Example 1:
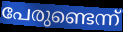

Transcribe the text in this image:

പേരുണ്ടെന്ന്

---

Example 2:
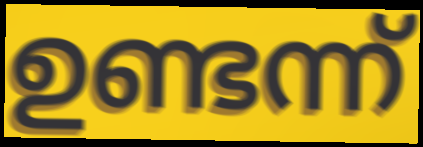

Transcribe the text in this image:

ഉണ്ടന്ന്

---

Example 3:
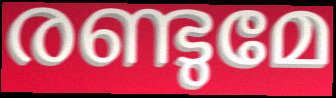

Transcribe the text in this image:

രണ്ടുമേ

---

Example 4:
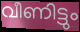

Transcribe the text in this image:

വീണിട്ടും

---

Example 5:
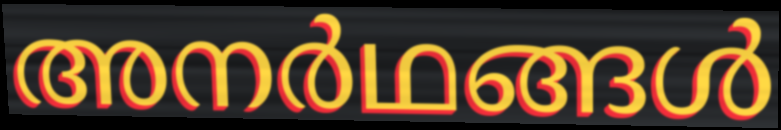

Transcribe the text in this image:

അനർഥങ്ങൾ